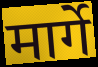
मार्गे